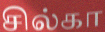
சில்கா